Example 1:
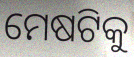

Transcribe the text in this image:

ମେଷଟିକୁ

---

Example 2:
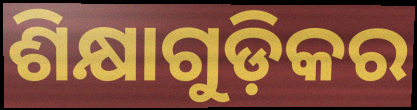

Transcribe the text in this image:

ଶିକ୍ଷାଗୁଡ଼ିକର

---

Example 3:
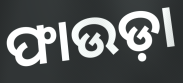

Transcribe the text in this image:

ଫାଉଡ଼ା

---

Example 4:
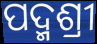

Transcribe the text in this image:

ପଦ୍ମଶ୍ରୀ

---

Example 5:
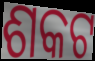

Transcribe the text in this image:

ଶକଟ